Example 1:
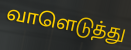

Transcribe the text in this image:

வாளெடுத்து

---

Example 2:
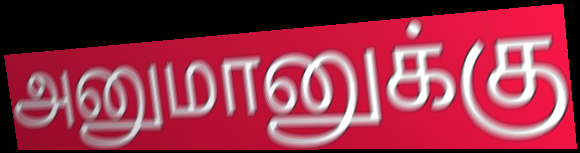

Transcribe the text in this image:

அனுமானுக்கு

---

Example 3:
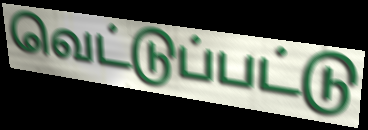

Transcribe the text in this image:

வெட்டுப்பட்டு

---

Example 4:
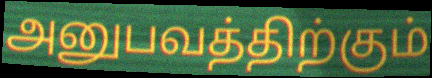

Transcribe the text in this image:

அனுபவத்திற்கும்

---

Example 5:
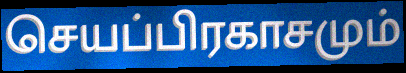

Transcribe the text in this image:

செயப்பிரகாசமும்